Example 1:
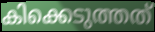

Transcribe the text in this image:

കിക്കെടുത്തത്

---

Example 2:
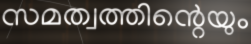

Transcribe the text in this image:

സമത്വത്തിന്റെയും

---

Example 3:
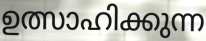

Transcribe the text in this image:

ഉത്സാഹിക്കുന്ന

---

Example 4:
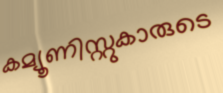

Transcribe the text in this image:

കമ്യൂണിസ്റ്റുകാരുടെ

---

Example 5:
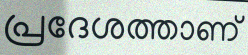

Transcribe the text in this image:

പ്രദേശത്താണ്